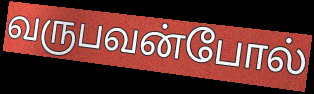
வருபவன்போல்